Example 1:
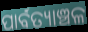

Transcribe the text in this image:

ପାର୍ବତ୍ୟାଞ୍ଚଳ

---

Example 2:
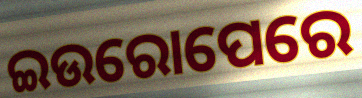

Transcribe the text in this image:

ଇଉରୋପେରେ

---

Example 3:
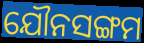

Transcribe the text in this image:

ଯୌନସଙ୍ଗମ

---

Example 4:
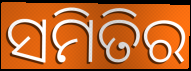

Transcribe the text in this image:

ସମିତିର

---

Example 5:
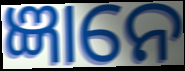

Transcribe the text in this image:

ଜ୍ଞାନେ